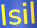
Isil